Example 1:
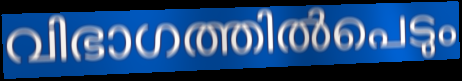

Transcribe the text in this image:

വിഭാഗത്തിൽപെടും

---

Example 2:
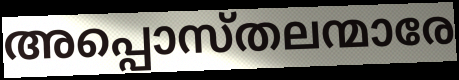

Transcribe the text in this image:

അപ്പൊസ്തലന്മാരേ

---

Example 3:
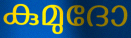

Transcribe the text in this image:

കുമുദോ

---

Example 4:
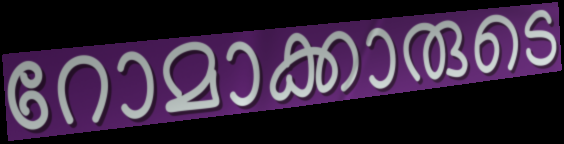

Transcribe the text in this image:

റോമാക്കാരുടെ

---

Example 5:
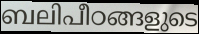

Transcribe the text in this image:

ബലിപീഠങ്ങളുടെ